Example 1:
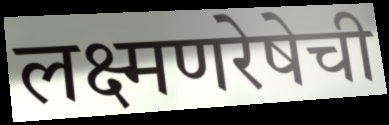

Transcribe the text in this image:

लक्ष्मणरेषेची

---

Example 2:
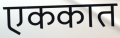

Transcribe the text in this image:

एककात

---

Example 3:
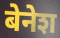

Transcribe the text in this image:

बेनेश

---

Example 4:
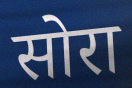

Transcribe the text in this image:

सोरा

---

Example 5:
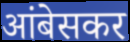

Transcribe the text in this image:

आंबेसकर